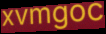
xvmgoc